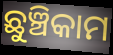
ଛୁଞ୍ଚିକାମ